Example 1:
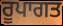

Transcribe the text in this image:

ਰੂਪਾਗਤ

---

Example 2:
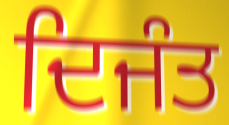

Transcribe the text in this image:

ਦਿਜੰਤ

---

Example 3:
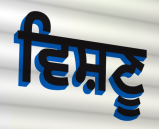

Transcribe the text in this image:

ਵਿਸ਼ਣੂ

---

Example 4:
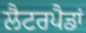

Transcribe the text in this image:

ਲੈਟਰਪੈਡਾਂ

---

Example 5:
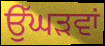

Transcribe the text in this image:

ਉੱਘੜਵਾਂ